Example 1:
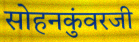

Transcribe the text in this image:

सोहनकुंवरजी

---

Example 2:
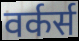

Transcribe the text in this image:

वर्कर्स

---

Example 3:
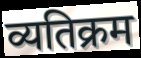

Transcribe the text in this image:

व्यतिक्रम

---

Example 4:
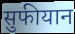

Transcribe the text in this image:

सुफीयान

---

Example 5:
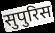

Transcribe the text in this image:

सुपुरिस